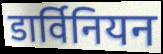
डार्विनियन